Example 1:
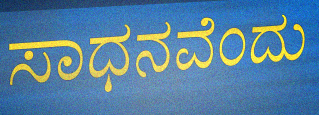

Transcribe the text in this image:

ಸಾಧನವೆಂದು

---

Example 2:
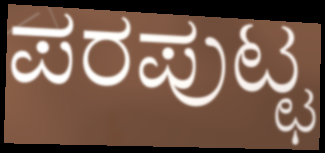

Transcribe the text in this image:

ಪರಪುಟ್ಟ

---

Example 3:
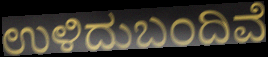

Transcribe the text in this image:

ಉಳಿದುಬಂದಿವೆ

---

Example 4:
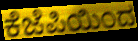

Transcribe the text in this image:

ಕೆಜೆಪಿಯಿಂದ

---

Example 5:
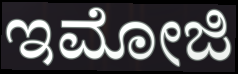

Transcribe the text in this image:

ಇಮೋಜಿ